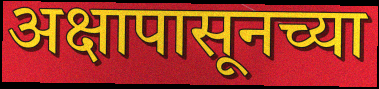
अक्षापासूनच्या